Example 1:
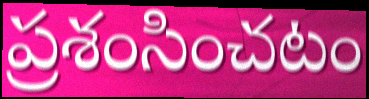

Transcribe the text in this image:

ప్రశంసించటం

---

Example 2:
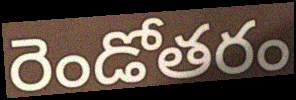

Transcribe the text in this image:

రెండోతరం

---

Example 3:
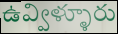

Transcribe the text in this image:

ఉవ్విళ్ళూరు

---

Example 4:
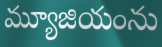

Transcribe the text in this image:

మ్యూజియంను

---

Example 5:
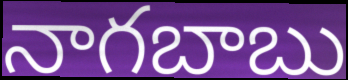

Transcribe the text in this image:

నాగబాబు